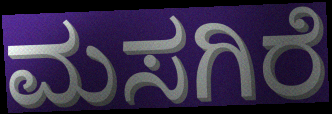
ಮಸಗಿರೆ